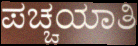
ಪಚ್ಚಯಾತಿ